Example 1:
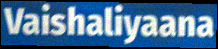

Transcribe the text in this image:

Vaishaliyaana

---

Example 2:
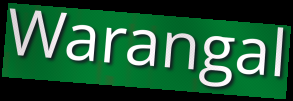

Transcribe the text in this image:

Warangal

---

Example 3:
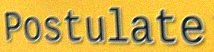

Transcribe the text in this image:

Postulate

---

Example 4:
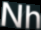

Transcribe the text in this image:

Nh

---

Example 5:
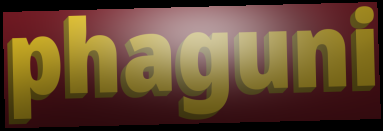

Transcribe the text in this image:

phaguni